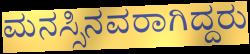
ಮನಸ್ಸಿನವರಾಗಿದ್ದರು